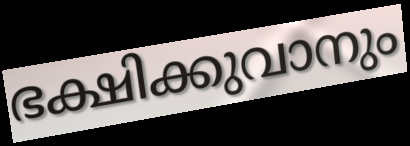
ഭക്ഷിക്കുവാനും